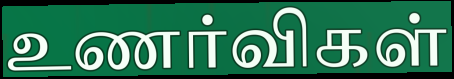
உணர்விகள்